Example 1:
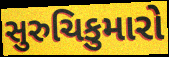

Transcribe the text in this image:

સુરુચિકુમારો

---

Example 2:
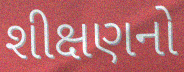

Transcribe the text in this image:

શીક્ષણનો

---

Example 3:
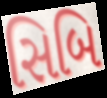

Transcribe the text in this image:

સિબિ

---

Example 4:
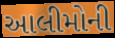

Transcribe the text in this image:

આલીમોની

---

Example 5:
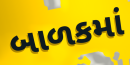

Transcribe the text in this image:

બાળકમાં